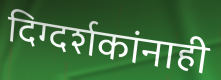
दिग्दर्शकांनाही